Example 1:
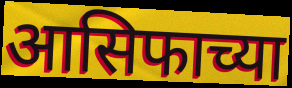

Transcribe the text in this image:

आसिफाच्या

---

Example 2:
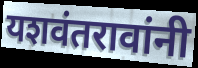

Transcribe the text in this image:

यशवंतरावांनी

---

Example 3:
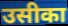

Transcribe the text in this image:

उसीका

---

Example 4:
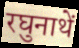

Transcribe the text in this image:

रघुनाथें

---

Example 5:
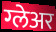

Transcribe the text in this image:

ग्लेअर